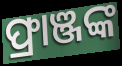
ଫ୍ରାଞ୍ଜଙ୍କ